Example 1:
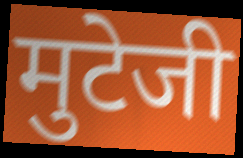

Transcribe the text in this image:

मुटेजी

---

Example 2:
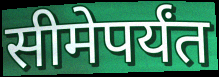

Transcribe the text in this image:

सीमेपर्यंत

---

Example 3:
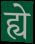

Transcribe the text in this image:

ह्ये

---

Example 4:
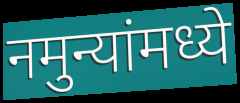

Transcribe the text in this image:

नमुन्यांमध्ये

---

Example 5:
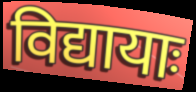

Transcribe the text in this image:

विद्यायाः